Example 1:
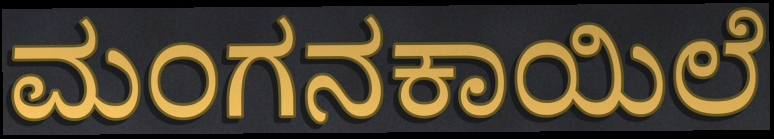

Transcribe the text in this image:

ಮಂಗನಕಾಯಿಲೆ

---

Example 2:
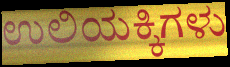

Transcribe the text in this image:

ಉಲಿಯಕ್ಕಿಗಳು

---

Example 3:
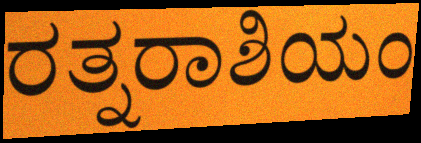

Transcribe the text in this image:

ರತ್ನರಾಶಿಯಂ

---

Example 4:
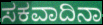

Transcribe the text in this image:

ಸಕವಾದಿನಾ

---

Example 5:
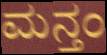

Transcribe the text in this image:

ಮನ್ತಂ